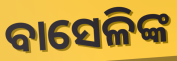
ବାସେଳିଙ୍କ